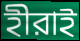
হীরাই